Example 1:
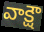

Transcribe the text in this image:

వాక్షౌ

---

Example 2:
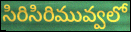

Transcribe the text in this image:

సిరిసిరిమువ్వలో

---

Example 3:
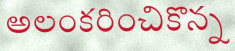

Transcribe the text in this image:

అలంకరించికొన్న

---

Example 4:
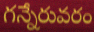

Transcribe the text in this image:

గన్నేరువరం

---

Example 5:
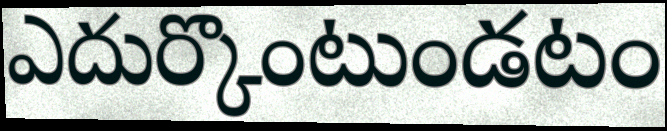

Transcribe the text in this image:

ఎదుర్కొంటుండటం